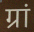
ग्रां